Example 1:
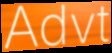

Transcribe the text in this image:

Advt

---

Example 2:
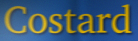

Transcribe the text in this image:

Costard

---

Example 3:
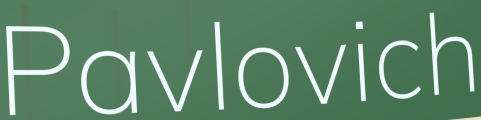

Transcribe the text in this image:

Pavlovich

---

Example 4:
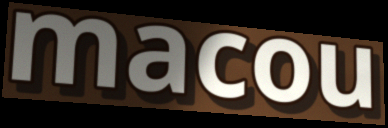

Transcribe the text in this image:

macou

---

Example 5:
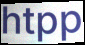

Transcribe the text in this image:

htpp